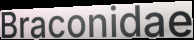
Braconidae